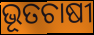
ଭୂତଚାଷୀ